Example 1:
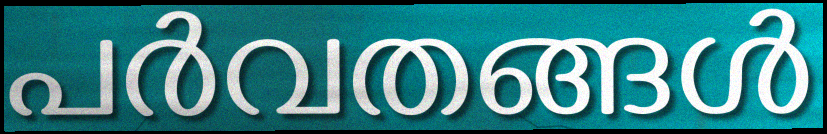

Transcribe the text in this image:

പർവതങ്ങൾ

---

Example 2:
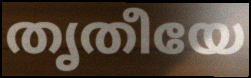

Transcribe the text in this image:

തൃതീയേ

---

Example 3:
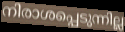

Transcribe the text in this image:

നിരാശപ്പെടുന്നില്ല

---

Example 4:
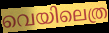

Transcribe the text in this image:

വെയിലെത്ര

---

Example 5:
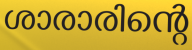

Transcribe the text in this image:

ശാരാരിന്റെ